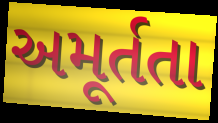
અમૂર્તતા